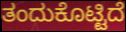
ತಂದುಕೊಟ್ಟಿದೆ